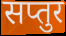
सप्तुर